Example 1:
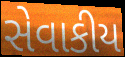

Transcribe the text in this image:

સેવાકીય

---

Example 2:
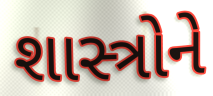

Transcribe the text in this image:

શાસ્ત્રોને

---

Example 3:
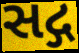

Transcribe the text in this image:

સદ્ગ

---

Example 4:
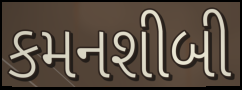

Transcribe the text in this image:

કમનશીબી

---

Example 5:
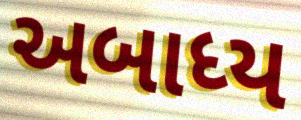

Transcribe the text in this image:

અબાધ્ય